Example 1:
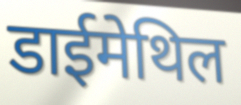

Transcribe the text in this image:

डाईमेथिल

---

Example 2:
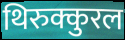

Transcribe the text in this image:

थिरुक्कुरल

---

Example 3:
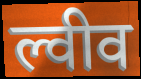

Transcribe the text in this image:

ल्वीव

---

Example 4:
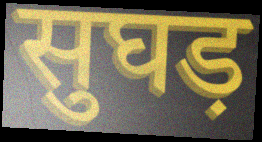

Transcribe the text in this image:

सुघड़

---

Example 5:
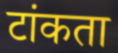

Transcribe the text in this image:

टांकता